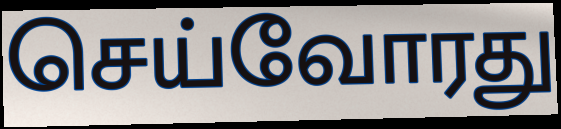
செய்வோரது